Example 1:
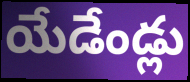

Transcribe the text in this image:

యేడేండ్లు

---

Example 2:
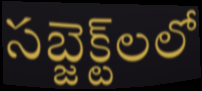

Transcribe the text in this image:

సబ్జెక్ట్‌లలో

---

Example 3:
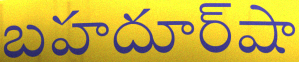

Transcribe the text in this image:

బహదూర్‌షా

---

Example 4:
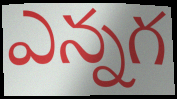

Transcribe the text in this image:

ఎన్నగ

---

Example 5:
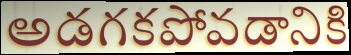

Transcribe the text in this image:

అడగకపోవడానికి